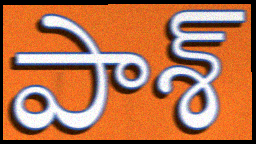
పాశ్